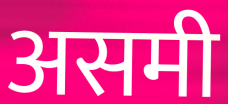
असमी